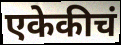
एकेकीचं